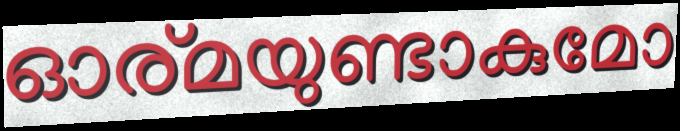
ഓര്മയുണ്ടാകുമോ